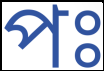
পঃ